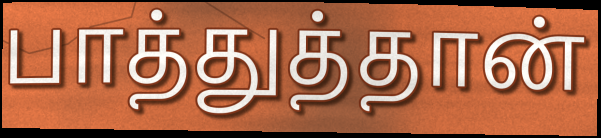
பாத்துத்தான்